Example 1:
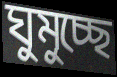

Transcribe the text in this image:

ঘুমুচ্ছে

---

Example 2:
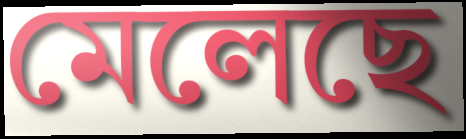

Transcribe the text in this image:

মেলেছে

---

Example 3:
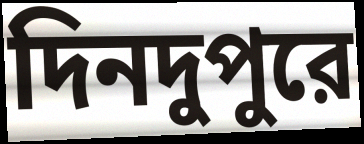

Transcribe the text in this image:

দিনদুপুরে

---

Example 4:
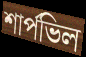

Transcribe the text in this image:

শার্পভিল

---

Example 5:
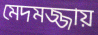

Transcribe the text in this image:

মেদমজ্জায়